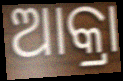
ଆକ୍ରା